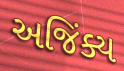
અજિંક્ય